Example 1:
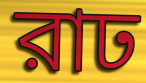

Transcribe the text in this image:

রাঢ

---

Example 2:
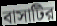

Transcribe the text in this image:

বাসাটির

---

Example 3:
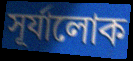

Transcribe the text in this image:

সূর্যালোক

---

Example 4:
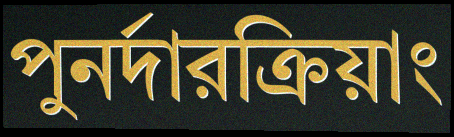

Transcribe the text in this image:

পুনর্দারক্রিয়াং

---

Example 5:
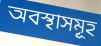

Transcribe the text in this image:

অবস্থাসমূহ